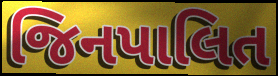
જિનપાલિત